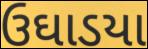
ઉઘાડયા